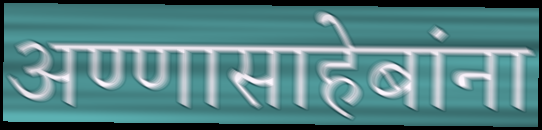
अण्णासाहेबांना